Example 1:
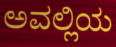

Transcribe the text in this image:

ಅವಲ್ಲಿಯ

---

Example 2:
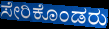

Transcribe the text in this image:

ಸೇರಿಕೊಂಡರು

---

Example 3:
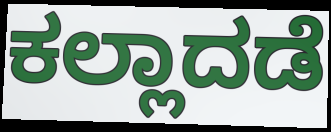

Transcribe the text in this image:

ಕಲ್ಲಾದಡೆ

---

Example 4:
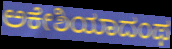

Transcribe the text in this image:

ಅಕೇಶಿಯಾದಂಥ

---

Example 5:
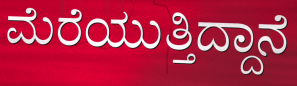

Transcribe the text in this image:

ಮೆರೆಯುತ್ತಿದ್ದಾನೆ